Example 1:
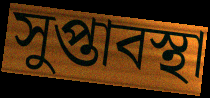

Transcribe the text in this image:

সুপ্তাবস্থা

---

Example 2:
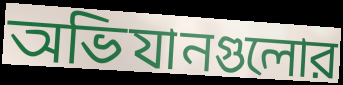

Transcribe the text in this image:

অভিযানগুলোর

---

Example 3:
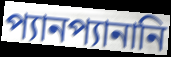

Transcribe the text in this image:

প্যানপ্যানানি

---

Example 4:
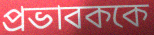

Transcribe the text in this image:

প্রভাবককে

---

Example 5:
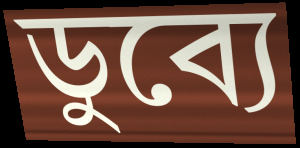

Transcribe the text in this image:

ডুব্যে